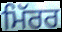
ਮਿੱਰਰ